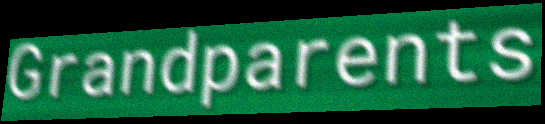
Grandparents